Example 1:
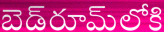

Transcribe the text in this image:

బెడ్‌రూమ్‌లోకి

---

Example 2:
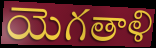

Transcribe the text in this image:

యెగతాళి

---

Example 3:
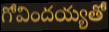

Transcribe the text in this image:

గోవిందయ్యతో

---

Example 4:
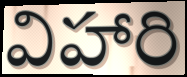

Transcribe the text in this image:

విహారి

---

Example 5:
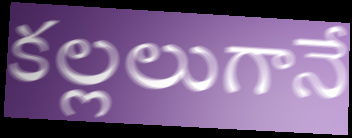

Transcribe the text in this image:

కల్లలుగానే